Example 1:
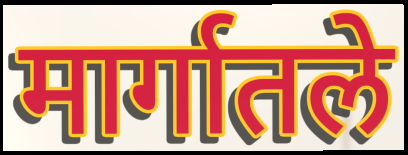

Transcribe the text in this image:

मार्गातले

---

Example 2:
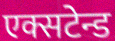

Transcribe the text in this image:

एक्सटेन्ड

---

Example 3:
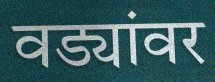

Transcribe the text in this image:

वड्यांवर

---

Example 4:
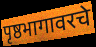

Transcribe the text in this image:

पृष्ठभागावरचे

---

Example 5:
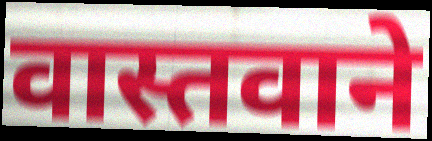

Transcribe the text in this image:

वास्तवाने